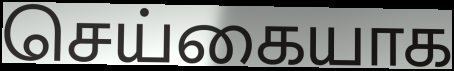
செய்கையாக